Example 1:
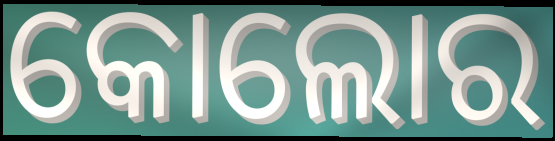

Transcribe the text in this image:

କୋଲୋର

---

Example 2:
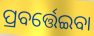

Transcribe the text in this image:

ପ୍ରବର୍ତ୍ତେଇବା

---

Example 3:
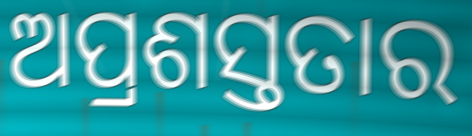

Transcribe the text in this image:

ଅପ୍ରଶସ୍ତତାର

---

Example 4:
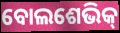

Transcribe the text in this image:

ବୋଲଶେଭିକ୍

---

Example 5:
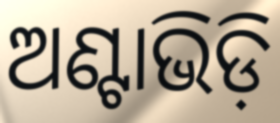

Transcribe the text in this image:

ଅଣ୍ଟାଭିଡ଼ି